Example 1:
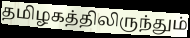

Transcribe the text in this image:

தமிழகத்திலிருந்தும்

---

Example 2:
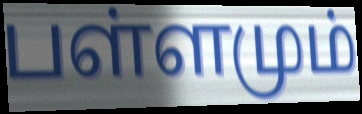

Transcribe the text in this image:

பள்ளமும்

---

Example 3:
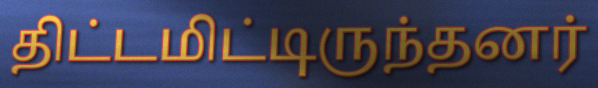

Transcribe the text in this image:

திட்டமிட்டிருந்தனர்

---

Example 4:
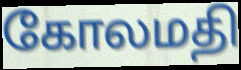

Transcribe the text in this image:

கோலமதி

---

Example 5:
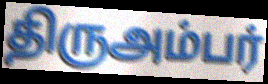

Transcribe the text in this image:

திருஅம்பர்